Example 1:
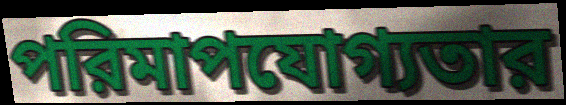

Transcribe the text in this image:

পরিমাপযোগ্যতার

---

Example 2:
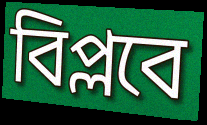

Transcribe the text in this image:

বিপ্লবে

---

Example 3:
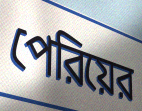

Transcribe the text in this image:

পেরিয়ের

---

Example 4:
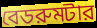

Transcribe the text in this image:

বেডরুমটার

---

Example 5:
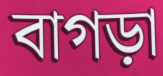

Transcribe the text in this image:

বাগড়া